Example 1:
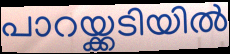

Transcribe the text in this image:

പാറയ്ക്കടിയിൽ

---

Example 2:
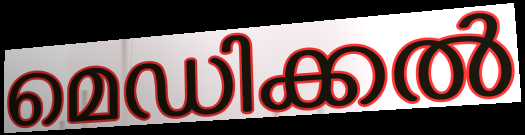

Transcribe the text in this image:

മെഡിക്കൽ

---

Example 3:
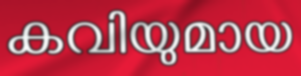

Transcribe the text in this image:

കവിയുമായ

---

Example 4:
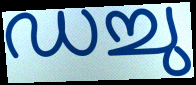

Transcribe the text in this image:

ഡച്ചു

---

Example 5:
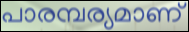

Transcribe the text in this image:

പാരമ്പര്യമാണ്